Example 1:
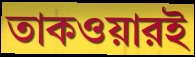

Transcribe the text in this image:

তাকওয়ারই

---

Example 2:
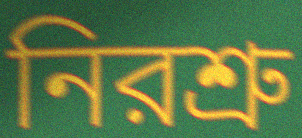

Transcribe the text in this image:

নিরশ্রু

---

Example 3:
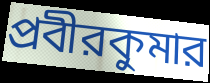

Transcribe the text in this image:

প্রবীরকুমার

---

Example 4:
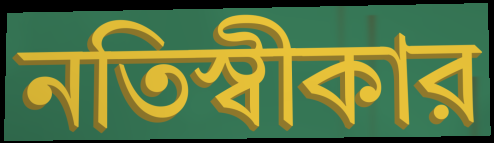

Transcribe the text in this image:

নতিস্বীকার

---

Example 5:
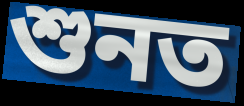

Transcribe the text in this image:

শুনত